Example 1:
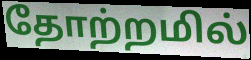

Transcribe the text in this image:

தோற்றமில்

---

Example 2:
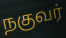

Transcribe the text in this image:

நகுவர்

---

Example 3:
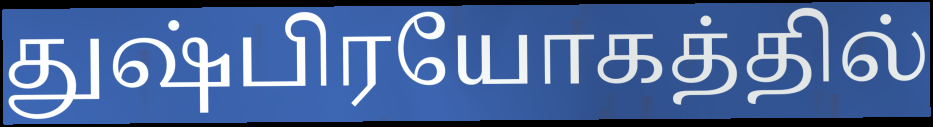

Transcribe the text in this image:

துஷ்பிரயோகத்தில்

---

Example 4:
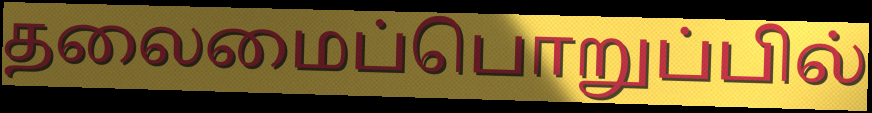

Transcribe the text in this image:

தலைமைப்பொறுப்பில்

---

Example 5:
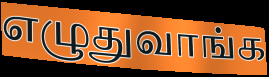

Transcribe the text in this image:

எழுதுவாங்க